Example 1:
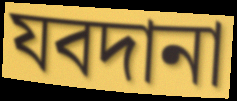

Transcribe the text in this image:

যবদানা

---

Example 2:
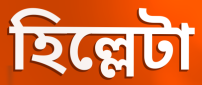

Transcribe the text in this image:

হিল্লেটা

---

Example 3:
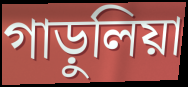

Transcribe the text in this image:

গাড়ুলিয়া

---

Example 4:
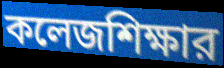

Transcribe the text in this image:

কলেজশিক্ষার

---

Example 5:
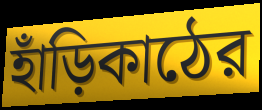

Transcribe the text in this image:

হাঁড়িকাঠের